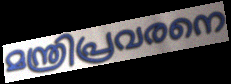
മന്ത്രിപ്രവരനെ